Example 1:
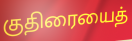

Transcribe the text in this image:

குதிரையைத்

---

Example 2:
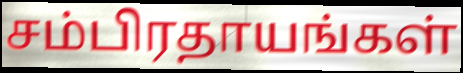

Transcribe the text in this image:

சம்பிரதாயங்கள்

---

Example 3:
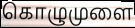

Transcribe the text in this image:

கொழுமுளை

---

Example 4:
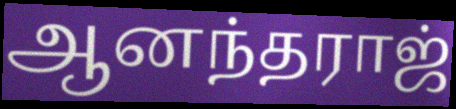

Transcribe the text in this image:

ஆனந்தராஜ்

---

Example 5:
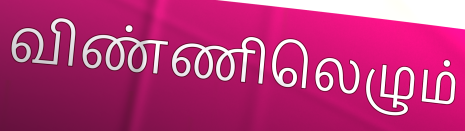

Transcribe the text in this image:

விண்ணிலெழும்